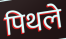
पिथले